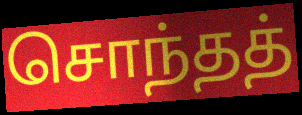
சொந்தத்